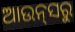
ଆଉନ୍‍ସରୁ